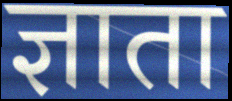
ज्ञाता